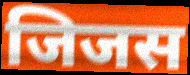
जिजस